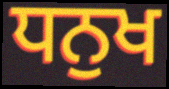
ਧਨੁਖ